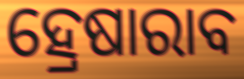
ହ୍ରେଷାରାବ